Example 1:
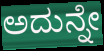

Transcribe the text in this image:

ಅದುನ್ನೇ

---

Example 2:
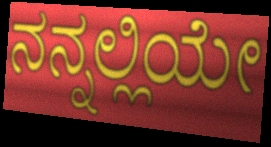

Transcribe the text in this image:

ನನ್ನಲ್ಲಿಯೇ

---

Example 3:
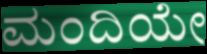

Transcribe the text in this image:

ಮಂದಿಯೇ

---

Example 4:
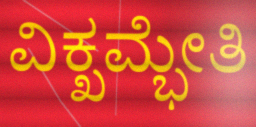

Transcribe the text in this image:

ವಿಕ್ಖಮ್ಭೇತಿ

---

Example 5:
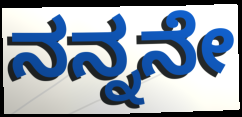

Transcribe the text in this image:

ನನ್ನನೇ